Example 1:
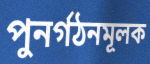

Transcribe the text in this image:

পুনর্গঠনমূলক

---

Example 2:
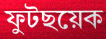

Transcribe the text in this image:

ফুটছয়েক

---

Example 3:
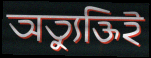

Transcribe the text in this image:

অত্যুক্তিই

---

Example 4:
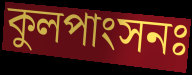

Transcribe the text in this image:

কুলপাংসনঃ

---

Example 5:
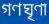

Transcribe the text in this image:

গণঘৃণা